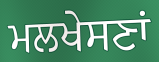
ਮਲਖੇਸਣਾਂ